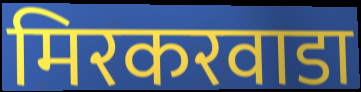
मिरकरवाडा